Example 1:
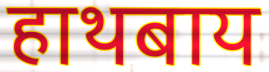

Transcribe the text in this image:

हाथबाय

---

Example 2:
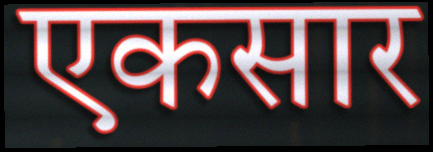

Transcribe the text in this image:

एकसार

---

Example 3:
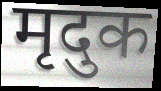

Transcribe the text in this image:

मृदुक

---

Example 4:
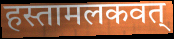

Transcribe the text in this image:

हस्तामलकवत्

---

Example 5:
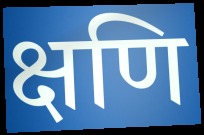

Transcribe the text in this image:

क्षणि